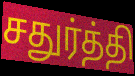
சதுர்த்தி